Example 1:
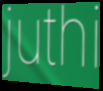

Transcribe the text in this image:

juthi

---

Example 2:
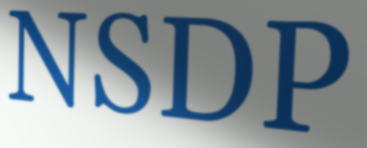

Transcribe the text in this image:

NSDP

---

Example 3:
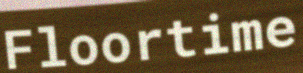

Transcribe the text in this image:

Floortime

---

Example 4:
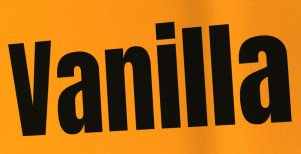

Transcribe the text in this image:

Vanilla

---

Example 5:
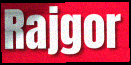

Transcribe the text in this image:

Rajgor